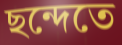
ছন্দেতে